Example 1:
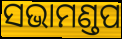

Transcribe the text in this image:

ସଭାମଣ୍ଡପ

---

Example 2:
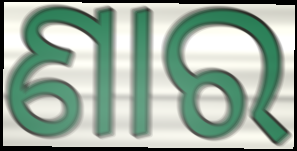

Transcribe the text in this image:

ଣାର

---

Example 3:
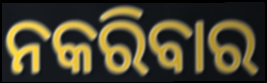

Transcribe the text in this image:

ନକରିବାର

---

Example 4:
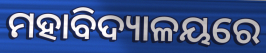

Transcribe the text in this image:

ମହାବିଦ୍ୟାଳୟରେ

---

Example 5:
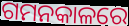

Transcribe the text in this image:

ଗମନକାଳରେ